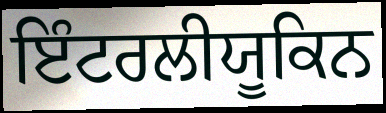
ਇੰਟਰਲੀਯੂਕਿਨ